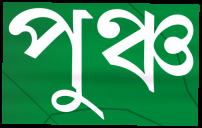
পুঞ্চ